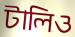
টালিও